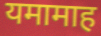
यमामाह